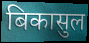
बिकासुल